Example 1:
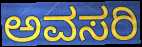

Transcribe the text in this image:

ಅವಸರಿ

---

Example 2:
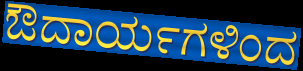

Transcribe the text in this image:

ಔದಾರ್ಯಗಳಿಂದ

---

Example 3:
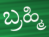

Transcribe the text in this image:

ಬ್ರಹ್ಮಿ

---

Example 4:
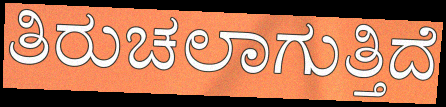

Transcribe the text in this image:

ತಿರುಚಲಾಗುತ್ತಿದೆ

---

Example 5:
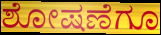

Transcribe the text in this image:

ಶೋಷಣೆಗೂ